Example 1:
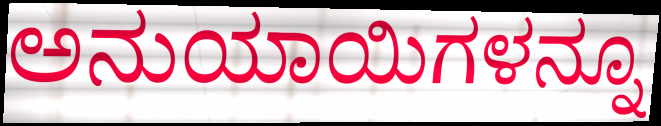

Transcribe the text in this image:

ಅನುಯಾಯಿಗಳನ್ನೂ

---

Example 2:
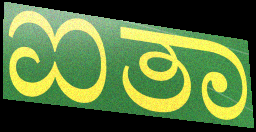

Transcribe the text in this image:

ಐತಾ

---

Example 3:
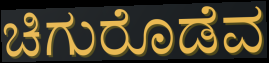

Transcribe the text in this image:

ಚಿಗುರೊಡೆವ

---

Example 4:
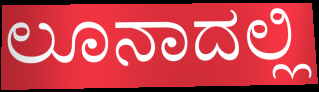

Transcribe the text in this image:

ಲೂನಾದಲ್ಲಿ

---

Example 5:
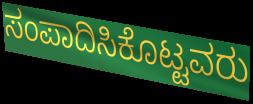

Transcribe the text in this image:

ಸಂಪಾದಿಸಿಕೊಟ್ಟವರು